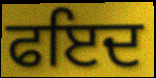
ਫਇਦ